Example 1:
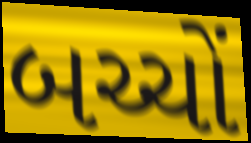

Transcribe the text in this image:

બચ્ચોં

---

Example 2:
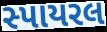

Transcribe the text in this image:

સ્પાયરલ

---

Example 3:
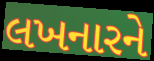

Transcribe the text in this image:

લખનારને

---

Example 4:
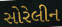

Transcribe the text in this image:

સોરેલીન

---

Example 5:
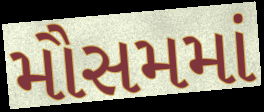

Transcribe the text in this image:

મૌસમમાં